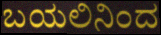
ಬಯಲಿನಿಂದ